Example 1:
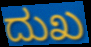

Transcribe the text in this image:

ದುಖ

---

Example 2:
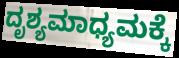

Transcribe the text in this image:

ದೃಶ್ಯಮಾಧ್ಯಮಕ್ಕೆ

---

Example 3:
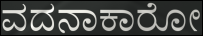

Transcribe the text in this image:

ವದನಾಕಾರೋ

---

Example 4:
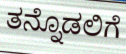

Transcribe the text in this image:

ತನ್ನೊಡಲಿಗೆ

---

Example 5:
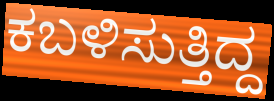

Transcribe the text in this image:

ಕಬಳಿಸುತ್ತಿದ್ದ